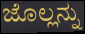
ಜೊಲ್ಲನ್ನು